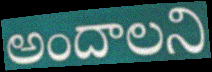
అందాలని